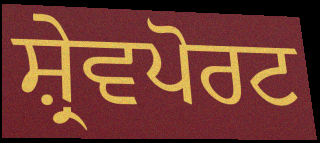
ਸ਼੍ਰੇਵਪੋਰਟ